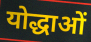
योद्धाओं